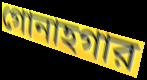
গোনাহগার